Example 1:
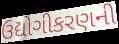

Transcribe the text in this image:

ઉદ્યોગીકરણની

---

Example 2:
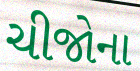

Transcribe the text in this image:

ચીજોના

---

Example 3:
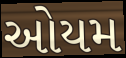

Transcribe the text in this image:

ઓયમ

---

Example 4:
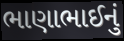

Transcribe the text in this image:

ભાણાભાઈનું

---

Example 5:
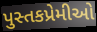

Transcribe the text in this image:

પુસ્તકપ્રેમીઓ